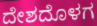
ದೇಶದೊಳಗ